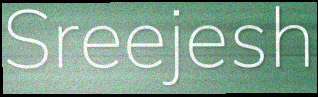
Sreejesh